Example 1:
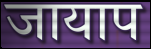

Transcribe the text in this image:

जायाप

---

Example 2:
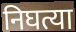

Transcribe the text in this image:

निघत्या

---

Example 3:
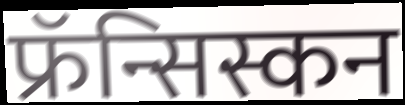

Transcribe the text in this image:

फ्रॅन्सिस्कन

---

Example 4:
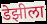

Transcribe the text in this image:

डेझीला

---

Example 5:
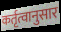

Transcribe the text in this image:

कर्तृत्वानुसार